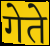
गेते